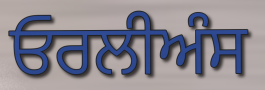
ਓਰਲੀਅੰਸ